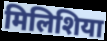
मिलिशिया